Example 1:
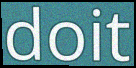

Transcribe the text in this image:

doit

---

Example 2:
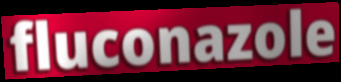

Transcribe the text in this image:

fluconazole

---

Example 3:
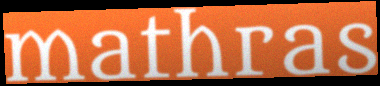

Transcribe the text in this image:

mathras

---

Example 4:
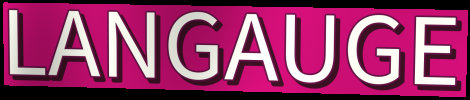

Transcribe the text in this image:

LANGAUGE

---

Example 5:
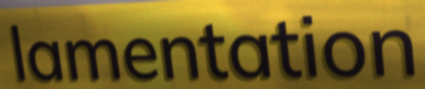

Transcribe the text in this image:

lamentation